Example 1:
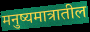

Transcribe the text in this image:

मनुष्यमात्रातील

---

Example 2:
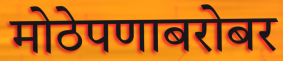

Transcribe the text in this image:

मोठेपणाबरोबर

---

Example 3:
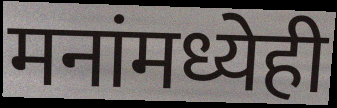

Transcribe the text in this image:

मनांमध्येही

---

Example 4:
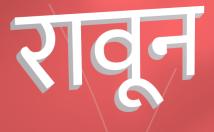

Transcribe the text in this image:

रावून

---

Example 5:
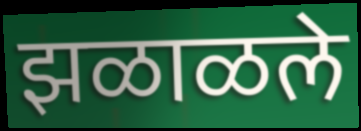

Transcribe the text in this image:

झळाळले